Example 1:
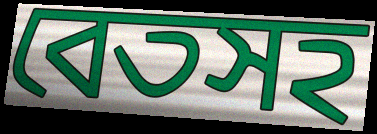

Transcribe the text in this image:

বেতসহ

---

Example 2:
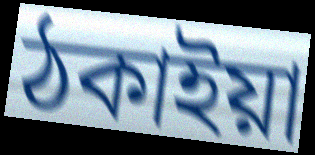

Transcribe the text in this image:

ঠকাইয়া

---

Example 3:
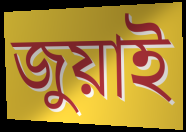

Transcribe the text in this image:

জুয়াই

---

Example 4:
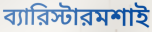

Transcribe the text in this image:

ব্যারিস্টারমশাই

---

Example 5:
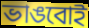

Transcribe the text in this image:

ভাঙবোই